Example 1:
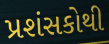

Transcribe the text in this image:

પ્રશંસકોથી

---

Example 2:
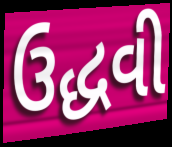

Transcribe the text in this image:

ઉદ્ધવી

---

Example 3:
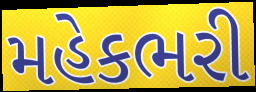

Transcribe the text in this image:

મહેકભરી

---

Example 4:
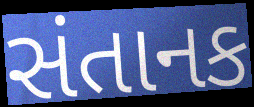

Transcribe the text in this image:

સંતાનક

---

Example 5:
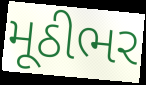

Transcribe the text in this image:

મૂઠીભર